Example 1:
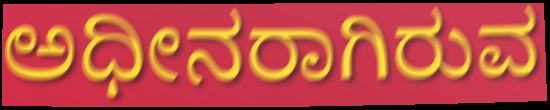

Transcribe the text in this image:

ಅಧೀನರಾಗಿರುವ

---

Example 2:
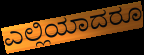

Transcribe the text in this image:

ಎಲ್ಲಿಯಾದರೂ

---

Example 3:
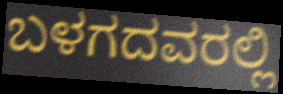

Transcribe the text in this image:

ಬಳಗದವರಲ್ಲಿ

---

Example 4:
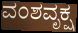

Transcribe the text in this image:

ವಂಶವೃಕ್ಷ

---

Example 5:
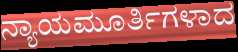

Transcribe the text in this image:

ನ್ಯಾಯಮೂರ್ತಿಗಳಾದ